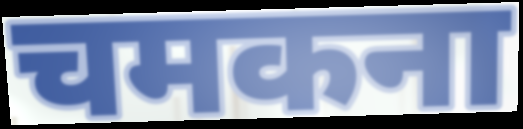
चमकना